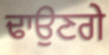
ਢਾਉਣਗੇ